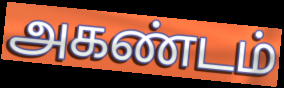
அகண்டம்